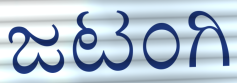
ಜಟಂಗಿ